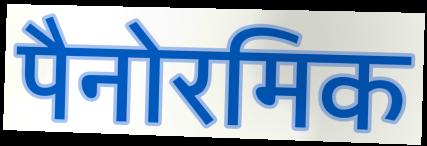
पैनोरमिक